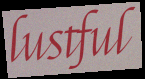
lustful